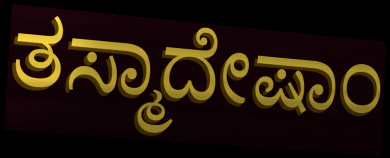
ತಸ್ಮಾದೇಷಾಂ